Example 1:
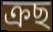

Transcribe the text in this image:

ক্ৰছ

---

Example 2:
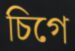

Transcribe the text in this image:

চিগে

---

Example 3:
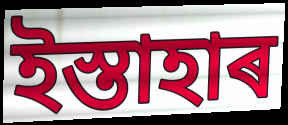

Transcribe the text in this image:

ইস্তাহাৰ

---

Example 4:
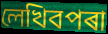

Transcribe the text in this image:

লেখিবপৰা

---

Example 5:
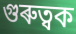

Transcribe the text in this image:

গুৰুত্বক